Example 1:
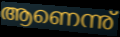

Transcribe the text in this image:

ആണെന്നു്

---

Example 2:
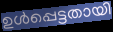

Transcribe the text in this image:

ഉൾപ്പെട്ടതായി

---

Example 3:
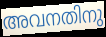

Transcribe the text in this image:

അവനതിനു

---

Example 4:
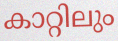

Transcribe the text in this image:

കാറ്റിലും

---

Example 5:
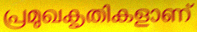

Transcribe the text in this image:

പ്രമുഖകൃതികളാണ്